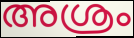
അശ്രം